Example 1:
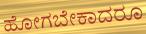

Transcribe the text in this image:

ಹೋಗಬೇಕಾದರೂ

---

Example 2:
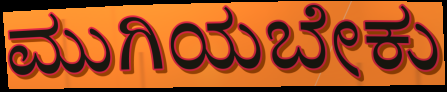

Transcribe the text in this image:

ಮುಗಿಯಬೇಕು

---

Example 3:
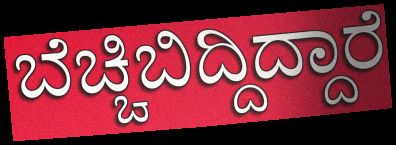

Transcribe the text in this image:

ಬೆಚ್ಚಿಬಿದ್ದಿದ್ದಾರೆ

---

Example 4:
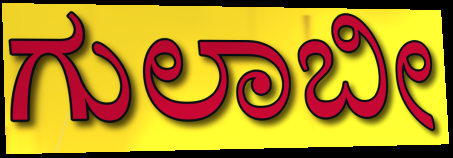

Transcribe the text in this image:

ಗುಲಾಬೀ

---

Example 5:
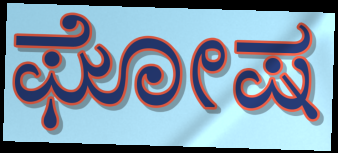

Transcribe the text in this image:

ಘೋಷ